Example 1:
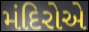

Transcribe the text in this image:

મંદિરોએ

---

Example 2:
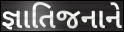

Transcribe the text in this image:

જ્ઞાતિજનાને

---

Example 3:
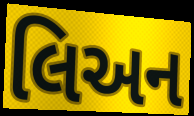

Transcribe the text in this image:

લિઅન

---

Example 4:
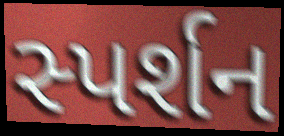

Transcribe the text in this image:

સ્પર્શન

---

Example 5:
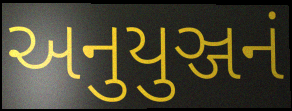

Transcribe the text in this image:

અનુયુઞ્જનં